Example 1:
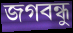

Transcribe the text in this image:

জগবন্ধু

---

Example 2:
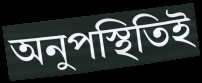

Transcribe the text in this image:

অনুপস্থিতিই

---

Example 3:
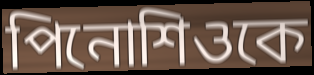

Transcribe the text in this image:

পিনোশিওকে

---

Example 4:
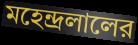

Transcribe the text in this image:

মহেন্দ্রলালের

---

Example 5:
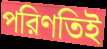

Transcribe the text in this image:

পরিণতিই